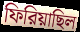
ফিরিয়াছিল